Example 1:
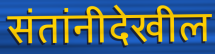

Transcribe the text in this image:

संतांनीदेखील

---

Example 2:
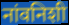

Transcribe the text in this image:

नांवनिशी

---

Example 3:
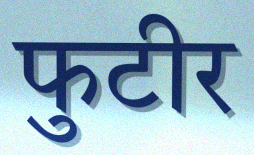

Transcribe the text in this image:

फुटीर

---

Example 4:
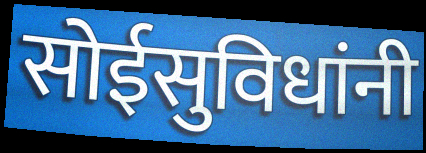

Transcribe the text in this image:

सोईसुविधांनी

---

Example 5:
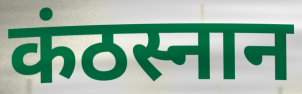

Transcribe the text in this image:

कंठस्नान